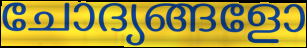
ചോദ്യങ്ങളോ